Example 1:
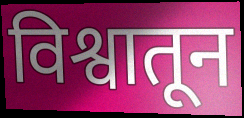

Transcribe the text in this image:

विश्वातून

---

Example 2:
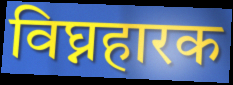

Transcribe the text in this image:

विघ्नहारक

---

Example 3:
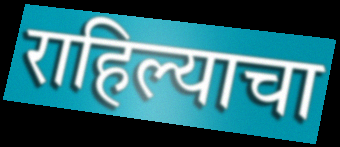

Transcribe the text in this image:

राहिल्याचा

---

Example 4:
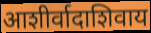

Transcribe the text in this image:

आशीर्वादाशिवाय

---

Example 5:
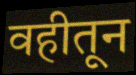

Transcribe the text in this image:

वहीतून